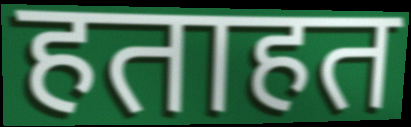
हताहत